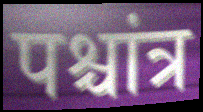
पश्चांत्र